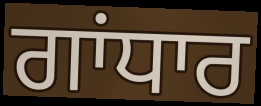
ਗਾਂਧਾਰ